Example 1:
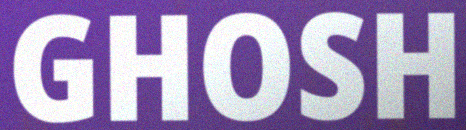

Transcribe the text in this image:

GHOSH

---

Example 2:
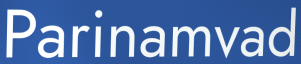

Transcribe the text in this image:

Parinamvad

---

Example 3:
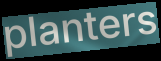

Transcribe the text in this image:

planters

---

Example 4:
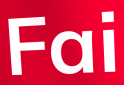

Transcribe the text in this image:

Fai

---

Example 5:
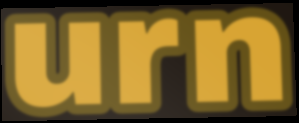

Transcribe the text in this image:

urn